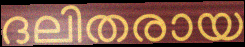
ദലിതരായ